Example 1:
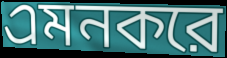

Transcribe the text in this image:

এমনকরে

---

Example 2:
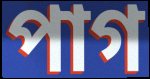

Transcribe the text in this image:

পাগ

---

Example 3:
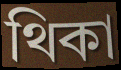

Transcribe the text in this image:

থিকা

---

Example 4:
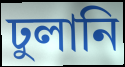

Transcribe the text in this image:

ঢুলানি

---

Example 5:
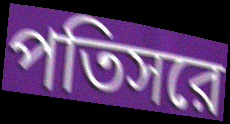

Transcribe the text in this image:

পতিসরে